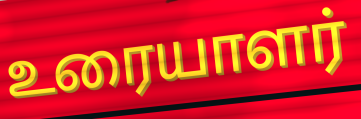
உரையாளர்